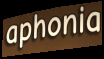
aphonia